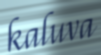
kaluva